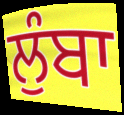
ਲੁੰਬਾ